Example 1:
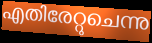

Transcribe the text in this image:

എതിരേറ്റുചെന്നു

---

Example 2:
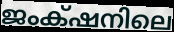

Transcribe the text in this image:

ജംക്‌ഷനിലെ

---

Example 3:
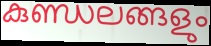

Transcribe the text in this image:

കുണ്ഡലങ്ങളും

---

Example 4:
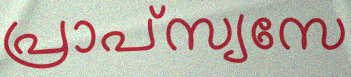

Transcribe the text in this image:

പ്രാപ്സ്യസേ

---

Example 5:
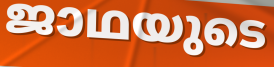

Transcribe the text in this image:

ജാഥയുടെ